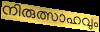
നിരുത്സാഹവും